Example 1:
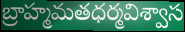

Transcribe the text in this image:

బ్రాహ్మమతధర్మవిశ్వాస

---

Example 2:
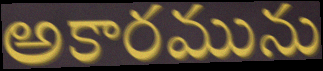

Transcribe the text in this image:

అకారమును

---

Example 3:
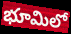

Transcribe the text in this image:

భూమిలో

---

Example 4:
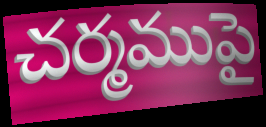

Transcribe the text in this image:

చర్మముపై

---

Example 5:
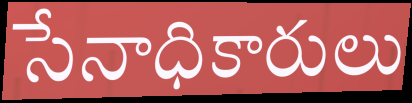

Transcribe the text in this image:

సేనాధికారులు